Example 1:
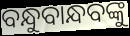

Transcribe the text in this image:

ବନ୍ଧୁବାନ୍ଧବଙ୍କୁ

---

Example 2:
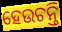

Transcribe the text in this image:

ହେଉଚନ୍ତି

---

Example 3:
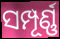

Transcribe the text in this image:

ସମ୍ପୂର୍ଣ୍ଣ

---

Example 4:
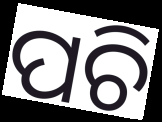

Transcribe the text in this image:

ପଚି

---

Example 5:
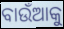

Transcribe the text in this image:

ବାଉଁଆକୁ